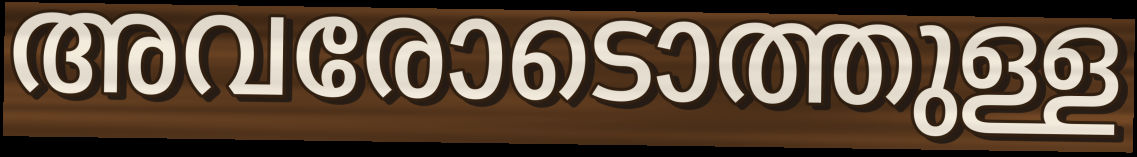
അവരോടൊത്തുള്ള